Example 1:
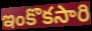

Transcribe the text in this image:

ఇంకొకసారి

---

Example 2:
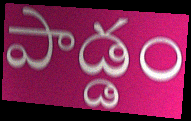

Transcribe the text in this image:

పాడ్డం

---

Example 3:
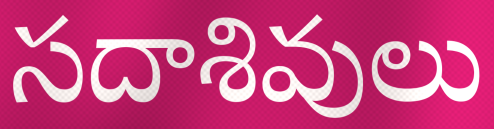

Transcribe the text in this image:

సదాశివులు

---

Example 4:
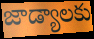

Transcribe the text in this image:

జాడ్యాలకు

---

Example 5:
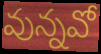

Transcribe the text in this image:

వున్నవో